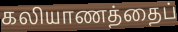
கலியாணத்தைப்